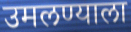
उमलण्याला